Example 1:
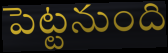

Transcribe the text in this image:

పెట్టనుంది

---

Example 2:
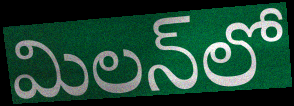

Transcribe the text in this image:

మిలన్‌లో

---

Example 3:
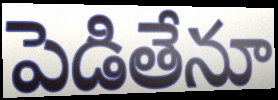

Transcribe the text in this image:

పెడితేనూ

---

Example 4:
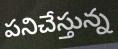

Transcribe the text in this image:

పనిచేస్తున్న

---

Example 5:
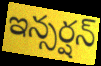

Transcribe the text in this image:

ఇన్సర్షన్